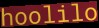
hoolilo